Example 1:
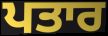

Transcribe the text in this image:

ਪਤਾਰ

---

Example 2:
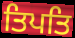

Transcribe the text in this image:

ਤਿਪਤਿ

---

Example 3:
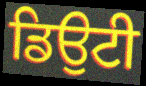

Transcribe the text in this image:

ਡਿਉਟੀ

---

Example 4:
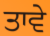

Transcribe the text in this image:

ਤਾਵੇ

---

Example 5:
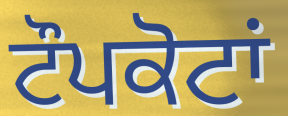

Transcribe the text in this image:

ਟੌਪਕੋਟਾਂ